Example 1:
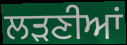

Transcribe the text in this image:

ਲੜਣੀਆਂ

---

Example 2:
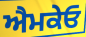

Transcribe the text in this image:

ਐਮਕੇਓ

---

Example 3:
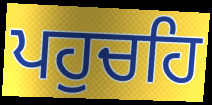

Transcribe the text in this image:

ਪਹੁਚਹਿ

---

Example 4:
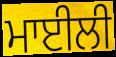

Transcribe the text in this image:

ਮਾਈਲੀ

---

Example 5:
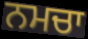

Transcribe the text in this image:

ਨਮਚਾ